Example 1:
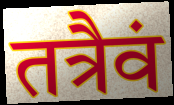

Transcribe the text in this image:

तत्रैवं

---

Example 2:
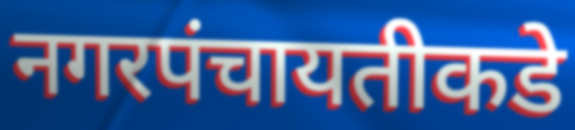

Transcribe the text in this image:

नगरपंचायतीकडे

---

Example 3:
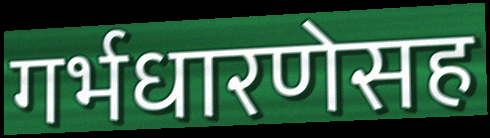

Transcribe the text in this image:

गर्भधारणेसह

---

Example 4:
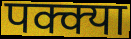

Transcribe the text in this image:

पक्क्या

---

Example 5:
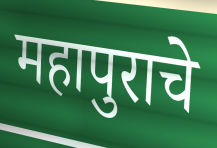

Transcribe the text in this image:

महापुराचे